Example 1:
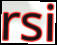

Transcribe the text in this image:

rsi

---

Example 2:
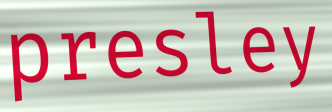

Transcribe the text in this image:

presley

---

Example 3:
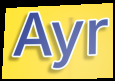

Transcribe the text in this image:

Ayr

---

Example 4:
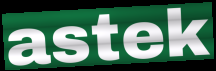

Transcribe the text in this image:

astek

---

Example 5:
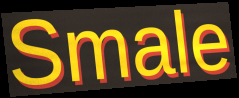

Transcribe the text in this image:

Smale